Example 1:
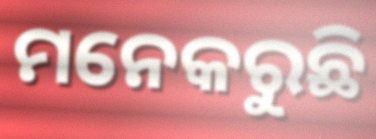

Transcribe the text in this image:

ମନେକରୁଛି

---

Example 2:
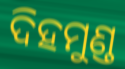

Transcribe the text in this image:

ଦିହମୁଣ୍ଡ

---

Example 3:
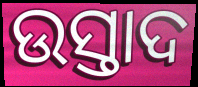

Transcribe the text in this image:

ଉସ୍ତାଦ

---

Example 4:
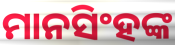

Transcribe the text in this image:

ମାନସିଂହଙ୍କ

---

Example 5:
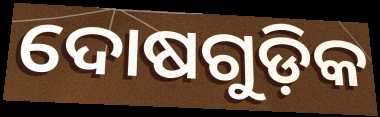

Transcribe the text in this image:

ଦୋଷଗୁଡ଼ିକ